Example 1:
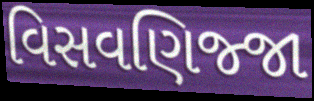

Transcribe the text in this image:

વિસવણિજ્જા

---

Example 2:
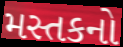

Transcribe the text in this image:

મસ્તકનો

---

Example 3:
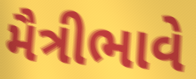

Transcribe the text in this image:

મૈત્રીભાવે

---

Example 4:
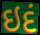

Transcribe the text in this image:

ઇદં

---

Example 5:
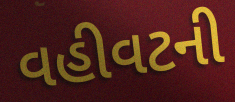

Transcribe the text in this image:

વહીવટની